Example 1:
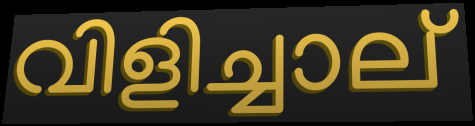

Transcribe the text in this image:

വിളിച്ചാല്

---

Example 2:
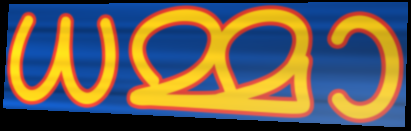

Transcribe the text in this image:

ധമ്മാ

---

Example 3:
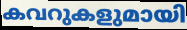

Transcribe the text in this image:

കവറുകളുമായി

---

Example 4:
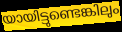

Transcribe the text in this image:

യായിട്ടുണ്ടെങ്കിലും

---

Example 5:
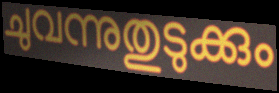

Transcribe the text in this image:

ചുവന്നുതുടുക്കും